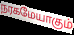
நரகமேயாகும்